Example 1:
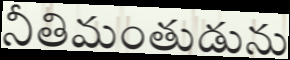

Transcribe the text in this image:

నీతిమంతుడును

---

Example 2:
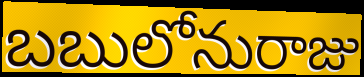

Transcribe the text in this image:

బబులోనురాజు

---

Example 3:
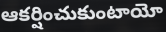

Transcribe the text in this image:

ఆకర్షించుకుంటాయో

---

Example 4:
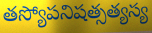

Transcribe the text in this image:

తస్యోపనిషత్సత్యస్య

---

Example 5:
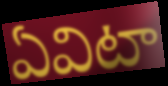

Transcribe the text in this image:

ఏవిటా